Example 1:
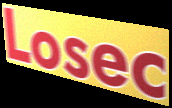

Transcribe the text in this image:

Losec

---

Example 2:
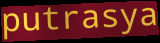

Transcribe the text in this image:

putrasya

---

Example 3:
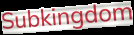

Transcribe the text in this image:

Subkingdom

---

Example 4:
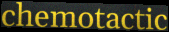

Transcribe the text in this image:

chemotactic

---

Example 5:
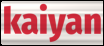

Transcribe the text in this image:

kaiyan